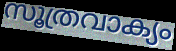
സൂത്രവാക്യം